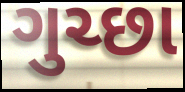
ગુચ્છા